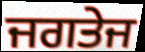
ਜਗਤੇਜ